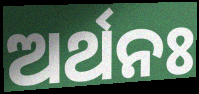
ଅର୍ଥନଃ